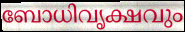
ബോധിവൃക്ഷവും